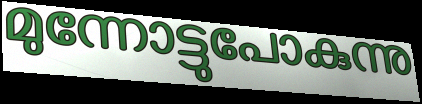
മുന്നോട്ടുപോകുന്നു